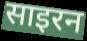
साइरन